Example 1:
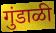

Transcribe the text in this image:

गुंडाळी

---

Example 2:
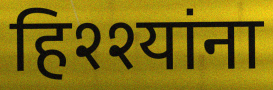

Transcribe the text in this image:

हिश्श्यांना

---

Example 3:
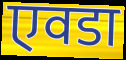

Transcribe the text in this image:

एवडा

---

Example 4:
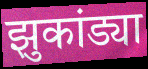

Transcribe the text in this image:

झुकांड्या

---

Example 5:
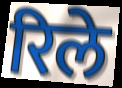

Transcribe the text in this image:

रिले